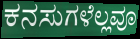
ಕನಸುಗಳೆಲ್ಲವೂ